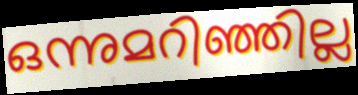
ഒന്നുമറിഞ്ഞില്ല